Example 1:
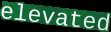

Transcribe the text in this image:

elevated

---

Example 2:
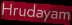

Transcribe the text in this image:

Hrudayam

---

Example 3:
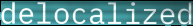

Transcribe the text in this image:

delocalized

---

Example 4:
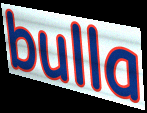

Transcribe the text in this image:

bulla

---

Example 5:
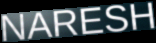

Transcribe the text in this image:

NARESH